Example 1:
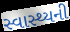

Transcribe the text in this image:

સ્વાસ્થ્યની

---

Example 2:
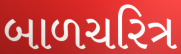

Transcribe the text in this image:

બાળચરિત્ર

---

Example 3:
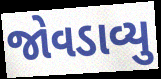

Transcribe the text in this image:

જોવડાવ્યુ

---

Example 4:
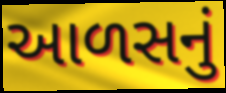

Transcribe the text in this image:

આળસનું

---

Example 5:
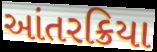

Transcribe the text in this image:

આંતરક્રિયા